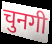
चुनगी